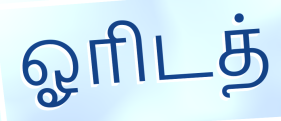
ஓரிடத்